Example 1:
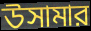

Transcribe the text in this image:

উসামার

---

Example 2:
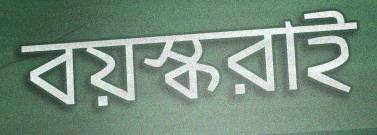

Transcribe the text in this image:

বয়স্করাই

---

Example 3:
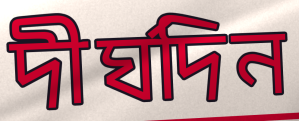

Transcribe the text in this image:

দীর্ঘদিন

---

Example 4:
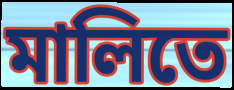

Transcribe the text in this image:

মালিতে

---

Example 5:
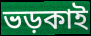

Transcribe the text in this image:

ভড়কাই